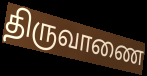
திருவாணை